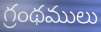
గ్రంథములు